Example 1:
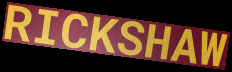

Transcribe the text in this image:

RICKSHAW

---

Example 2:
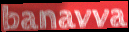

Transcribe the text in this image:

banavva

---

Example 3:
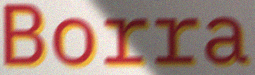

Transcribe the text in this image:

Borra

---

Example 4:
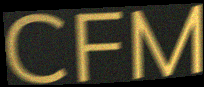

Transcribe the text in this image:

CFM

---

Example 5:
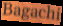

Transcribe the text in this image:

Bagachi